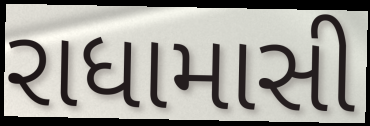
રાધામાસી